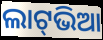
ଲାଟ୍‍ଭିଆ